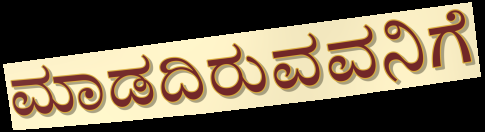
ಮಾಡದಿರುವವನಿಗೆ